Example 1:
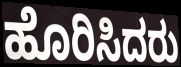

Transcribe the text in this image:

ಹೊರಿಸಿದರು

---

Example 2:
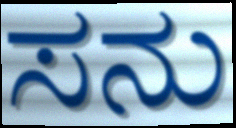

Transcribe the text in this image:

ಸನು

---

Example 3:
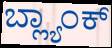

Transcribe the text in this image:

ಬ್ಲ್ಯಾಂಕ್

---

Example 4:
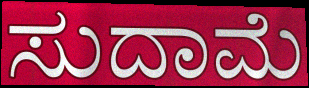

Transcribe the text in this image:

ಸುದಾಮೆ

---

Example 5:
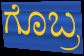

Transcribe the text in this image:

ಗೊಬ್ರ